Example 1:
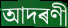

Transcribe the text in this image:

আদৰণী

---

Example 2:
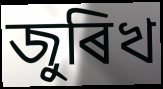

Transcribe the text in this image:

জুৰিখ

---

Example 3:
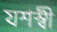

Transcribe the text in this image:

যশস্বী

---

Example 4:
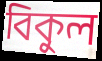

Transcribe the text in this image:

বিকুল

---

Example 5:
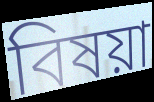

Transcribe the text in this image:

বিষয়া